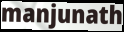
manjunath